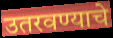
उतरवण्याचे